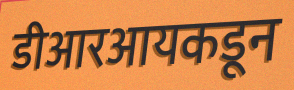
डीआरआयकडून